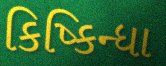
કિષ્કિન્ધા